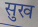
सुख